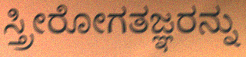
ಸ್ತ್ರೀರೋಗತಜ್ಞರನ್ನು